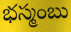
భస్మంబు